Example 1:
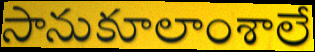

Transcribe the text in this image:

సానుకూలాంశాలే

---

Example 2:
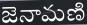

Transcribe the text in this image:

జెనామణి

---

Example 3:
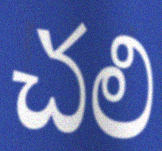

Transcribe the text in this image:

చలి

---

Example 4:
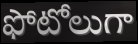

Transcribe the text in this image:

ఫోటోలుగా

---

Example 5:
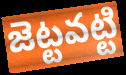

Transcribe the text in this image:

జెట్టవట్టి